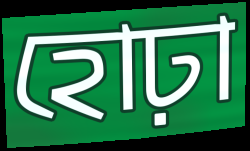
হোঢ়া